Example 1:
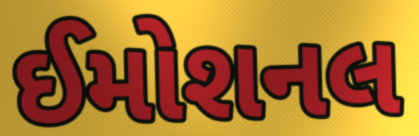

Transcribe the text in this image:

ઈમોશનલ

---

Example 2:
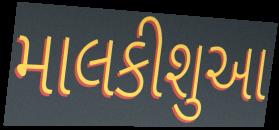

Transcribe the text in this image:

માલકીશુઆ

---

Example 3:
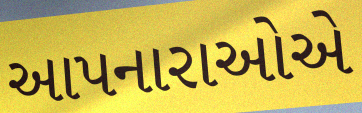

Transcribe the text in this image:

આપનારાઓએ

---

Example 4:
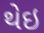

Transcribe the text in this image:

થેઇ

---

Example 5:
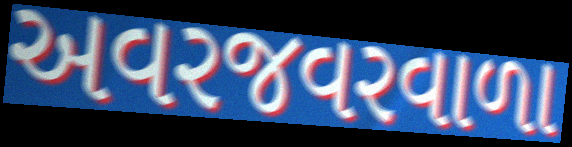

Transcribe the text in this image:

અવરજવરવાળા